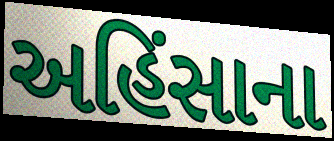
અહિંસાના